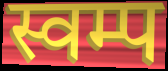
स्वम्प